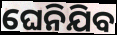
ଘେନିଯିବ